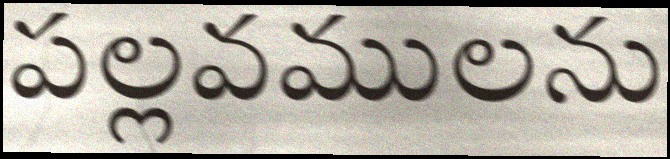
పల్లవములను